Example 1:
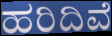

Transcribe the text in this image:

ಹರಿದಿವೆ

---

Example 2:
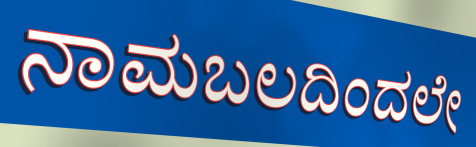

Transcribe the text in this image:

ನಾಮಬಲದಿಂದಲೇ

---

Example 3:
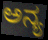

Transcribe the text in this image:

ಅನ್ಯ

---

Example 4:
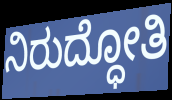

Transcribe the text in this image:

ನಿರುದ್ಧೋತಿ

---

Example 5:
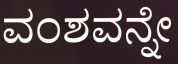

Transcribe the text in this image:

ವಂಶವನ್ನೇ